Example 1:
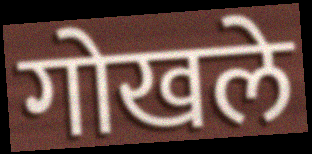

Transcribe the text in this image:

गोखले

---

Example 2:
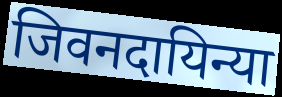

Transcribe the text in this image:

जिवनदायिन्या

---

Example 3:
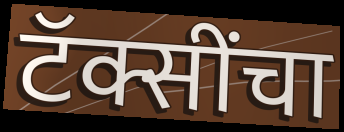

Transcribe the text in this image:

टॅक्सींचा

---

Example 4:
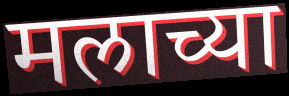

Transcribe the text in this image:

मलाच्या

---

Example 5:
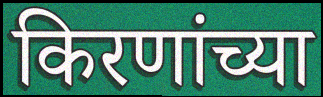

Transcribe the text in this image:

किरणांच्या